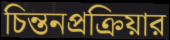
চিন্তনপ্রক্রিয়ার